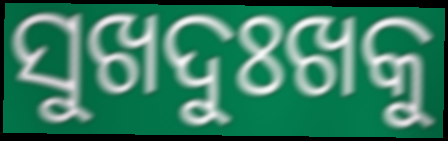
ସୁଖଦୁଃଖକୁ